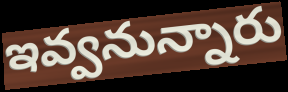
ఇవ్వనున్నారు